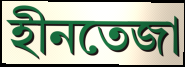
হীনতেজা